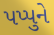
પપ્પુને